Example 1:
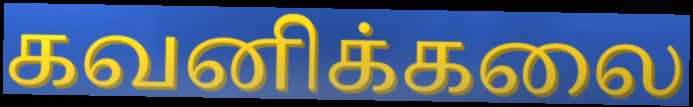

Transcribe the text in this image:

கவனிக்கலை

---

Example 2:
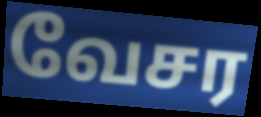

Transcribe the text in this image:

வேசர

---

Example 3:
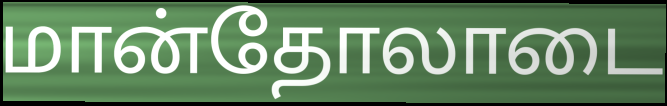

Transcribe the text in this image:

மான்தோலாடை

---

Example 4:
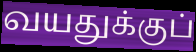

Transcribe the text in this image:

வயதுக்குப்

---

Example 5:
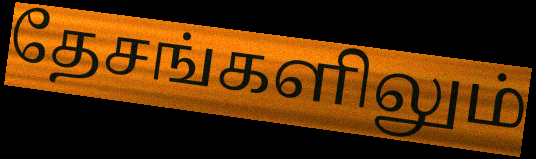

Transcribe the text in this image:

தேசங்களிலும்